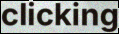
clicking